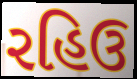
રહિઉ